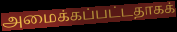
அமைக்கப்பட்டதாகக்